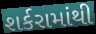
શર્કરામાંથી